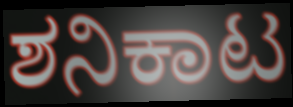
ಶನಿಕಾಟ